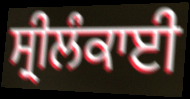
ਸ੍ਰੀਲੰਕਾਈ